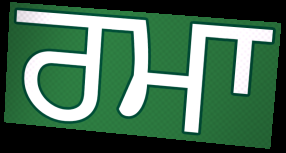
ਰਮਾ